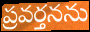
ప్రవర్తనను